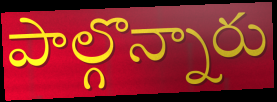
పాల్గొన్నారు